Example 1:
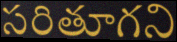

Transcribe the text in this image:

సరితూగని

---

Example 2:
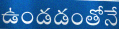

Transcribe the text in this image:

ఉండడంతోనే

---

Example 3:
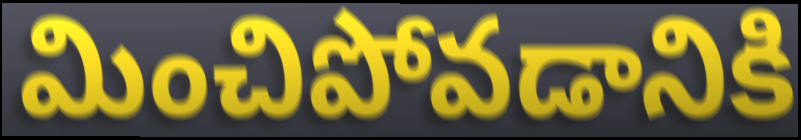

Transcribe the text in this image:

మించిపోవడానికి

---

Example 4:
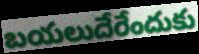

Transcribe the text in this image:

బయలుదేరేందుకు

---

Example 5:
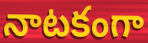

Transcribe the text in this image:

నాటకంగా